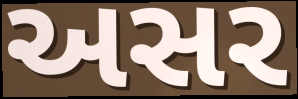
અસર